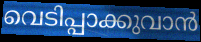
വെടിപ്പാക്കുവാൻ